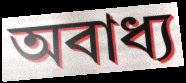
অবাধ্য